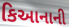
કિઆનાની